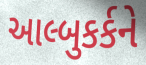
આલ્બુકર્કને